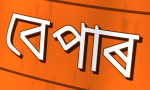
বেপাৰ